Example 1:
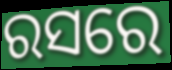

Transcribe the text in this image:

ରସରେ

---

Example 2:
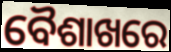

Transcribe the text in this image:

ବୈଶାଖରେ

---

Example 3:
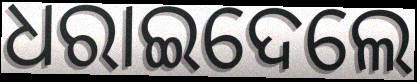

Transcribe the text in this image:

ଧରାଇଦେଲେ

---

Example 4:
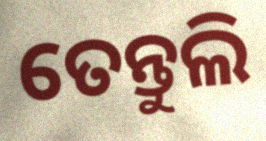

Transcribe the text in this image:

ତେନ୍ତୁଲି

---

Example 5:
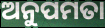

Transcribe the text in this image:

ଅନୁପମତା